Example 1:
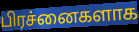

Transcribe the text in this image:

பிரச்னைகளாக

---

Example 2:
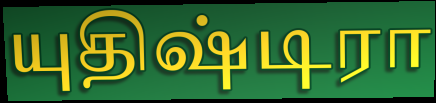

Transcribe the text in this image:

யுதிஷ்டிரா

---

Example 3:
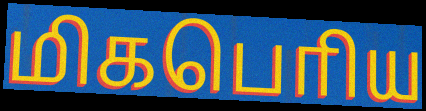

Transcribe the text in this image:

மிகபெரிய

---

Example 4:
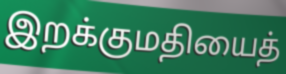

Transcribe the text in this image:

இறக்குமதியைத்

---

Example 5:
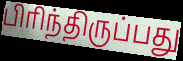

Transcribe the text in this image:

பிரிந்திருப்பது